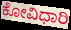
ಕೋವಿಧಾರಿ